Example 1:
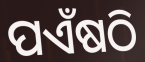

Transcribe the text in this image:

ପଏଁଷଠି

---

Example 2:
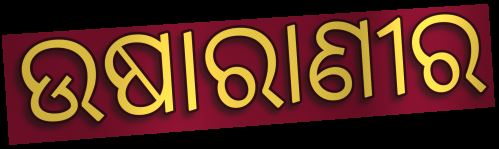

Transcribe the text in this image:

ଉଷାରାଣୀର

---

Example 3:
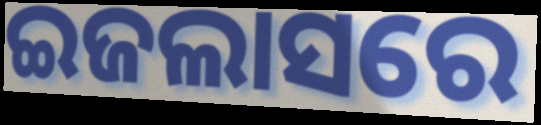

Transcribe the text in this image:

ଇଜଲାସରେ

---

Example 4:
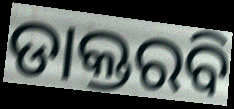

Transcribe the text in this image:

ଡାକ୍ତରବି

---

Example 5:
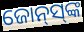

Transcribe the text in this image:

ଜୋନ୍‌ସ୍‌ଙ୍କ